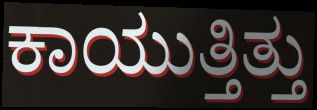
ಕಾಯುತ್ತಿತ್ತು